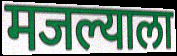
मजल्याला